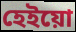
হেইয়ো